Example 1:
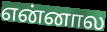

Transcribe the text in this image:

என்னால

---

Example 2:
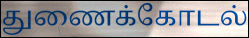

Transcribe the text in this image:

துணைக்கோடல்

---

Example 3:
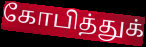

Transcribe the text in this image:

கோபித்துக்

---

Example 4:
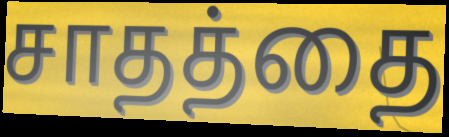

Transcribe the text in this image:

சாதத்தை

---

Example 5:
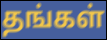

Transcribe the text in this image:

தங்கள்